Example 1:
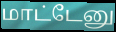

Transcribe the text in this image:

மாட்டேனு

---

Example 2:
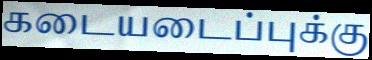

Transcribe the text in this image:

கடையடைப்புக்கு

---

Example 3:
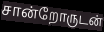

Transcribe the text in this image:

சான்றோருடன்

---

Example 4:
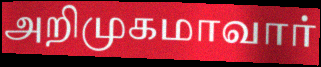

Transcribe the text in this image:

அறிமுகமாவார்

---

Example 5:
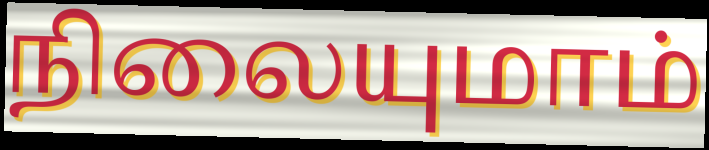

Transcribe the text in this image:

நிலையுமாம்